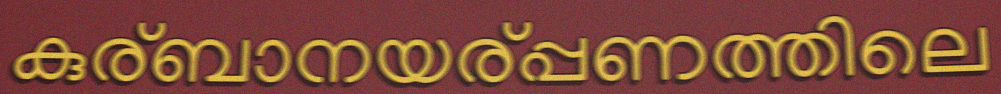
കുര്ബാനയര്പ്പണത്തിലെ